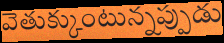
వెతుక్కుంటున్నప్పుడు